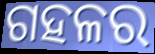
ଗହଳର